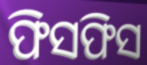
ଫିସଫିସ